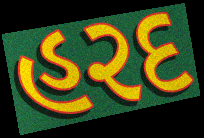
હરદ